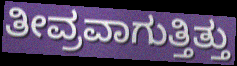
ತೀವ್ರವಾಗುತ್ತಿತ್ತು